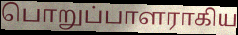
பொறுப்பாளராகிய